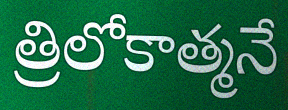
త్రిలోకాత్మనే